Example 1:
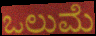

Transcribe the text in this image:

ಒಲುಮೆ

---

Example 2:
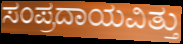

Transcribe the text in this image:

ಸಂಪ್ರದಾಯವಿತ್ತು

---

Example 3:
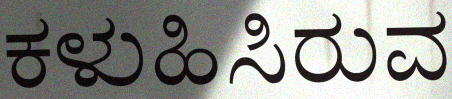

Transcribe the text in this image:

ಕಳುಹಿಸಿರುವ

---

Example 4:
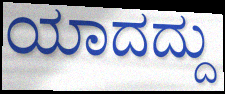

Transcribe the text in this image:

ಯಾದದ್ದು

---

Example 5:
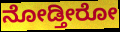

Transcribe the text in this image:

ನೋಡ್ತೀರೋ